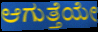
ಆಗುತ್ತೆಯೇ